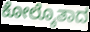
ಕೋಲ್ಕೊತಾದ